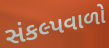
સંકલ્પવાળો